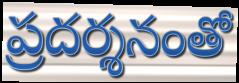
ప్రదర్శనంతో